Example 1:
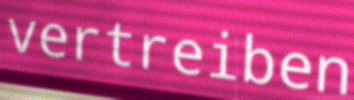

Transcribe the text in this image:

vertreiben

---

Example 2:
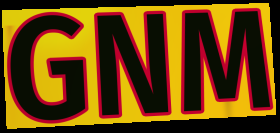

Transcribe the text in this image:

GNM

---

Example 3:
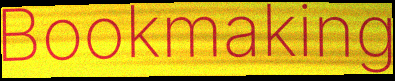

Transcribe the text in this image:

Bookmaking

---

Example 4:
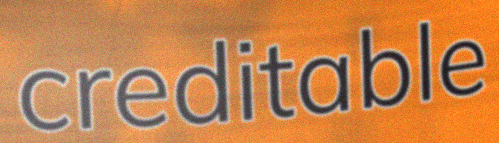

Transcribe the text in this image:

creditable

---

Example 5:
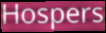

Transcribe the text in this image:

Hospers